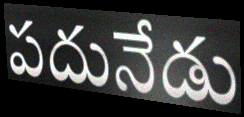
పదునేడు